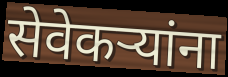
सेवेकऱ्यांना